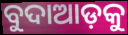
ବୁଦାଆଡ଼କୁ